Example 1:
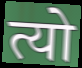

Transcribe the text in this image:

त्यो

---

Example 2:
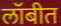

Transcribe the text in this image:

लॉबीत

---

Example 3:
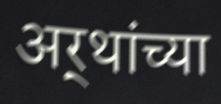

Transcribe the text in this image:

अर्थांच्या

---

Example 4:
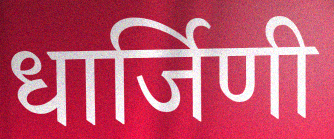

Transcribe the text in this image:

धार्जिणी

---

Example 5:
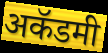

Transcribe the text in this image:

अकॅडमी